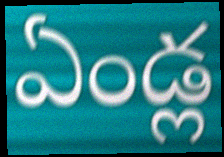
ఏండ్ల